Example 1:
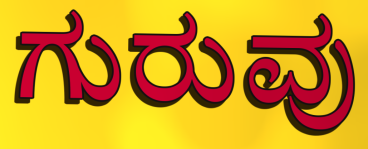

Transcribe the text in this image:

ಗುರುವು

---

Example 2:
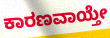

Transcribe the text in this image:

ಕಾರಣವಾಯ್ತೇ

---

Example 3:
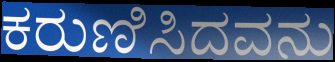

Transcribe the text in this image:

ಕರುಣಿಸಿದವನು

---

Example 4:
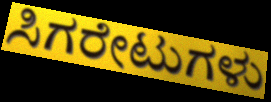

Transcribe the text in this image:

ಸಿಗರೇಟುಗಳು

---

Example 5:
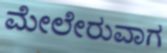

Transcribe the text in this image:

ಮೇಲೇರುವಾಗ